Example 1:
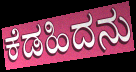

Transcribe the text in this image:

ಕೆಡಹಿದನು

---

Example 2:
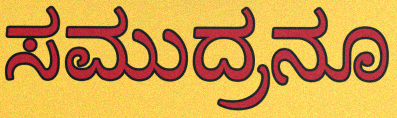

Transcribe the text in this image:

ಸಮುದ್ರನೂ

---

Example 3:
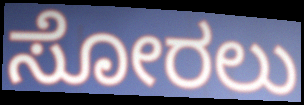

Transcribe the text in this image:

ಸೋರಲು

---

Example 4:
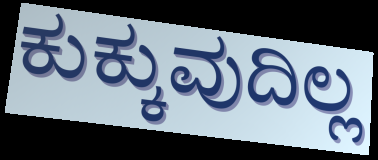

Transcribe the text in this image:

ಕುಕ್ಕುವುದಿಲ್ಲ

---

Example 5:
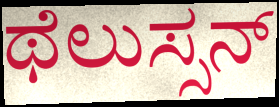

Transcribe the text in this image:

ಥೆಲುಸ್ಸನ್